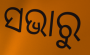
ସଭାରୁ